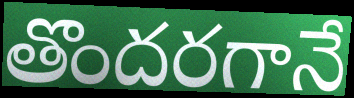
తొందరగానే